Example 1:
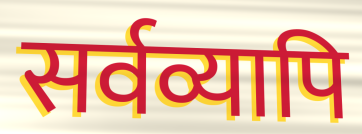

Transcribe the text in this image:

सर्वव्यापि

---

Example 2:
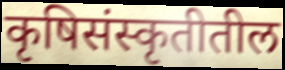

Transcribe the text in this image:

कृषिसंस्कृतीतील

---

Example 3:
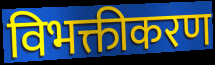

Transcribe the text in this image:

विभक्तीकरण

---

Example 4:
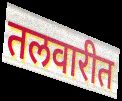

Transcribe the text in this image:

तलवारीत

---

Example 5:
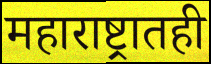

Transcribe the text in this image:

महाराष्ट्रातही